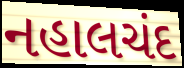
નહાલચંદ